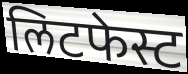
लिटफेस्ट